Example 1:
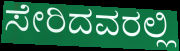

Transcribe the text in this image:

ಸೇರಿದವರಲ್ಲಿ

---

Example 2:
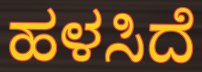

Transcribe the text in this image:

ಹಳಸಿದೆ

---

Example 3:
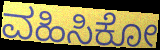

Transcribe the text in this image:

ವಹಿಸಿಕೋ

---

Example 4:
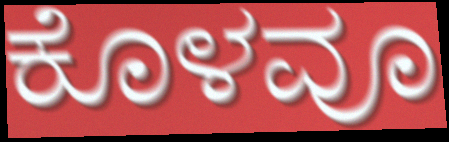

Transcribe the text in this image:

ಕೊಳವೂ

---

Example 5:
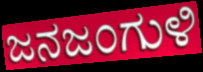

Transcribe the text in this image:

ಜನಜಂಗುಳಿ